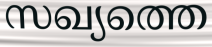
സഖ്യത്തെ